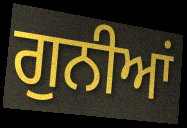
ਗੁਨੀਆਂ